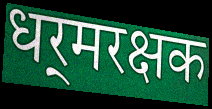
धर्मरक्षक